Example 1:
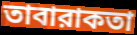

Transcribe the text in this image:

তাবারাকতা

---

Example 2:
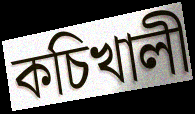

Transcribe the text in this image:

কচিখালী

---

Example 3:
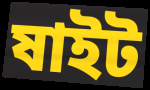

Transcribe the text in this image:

ষাইট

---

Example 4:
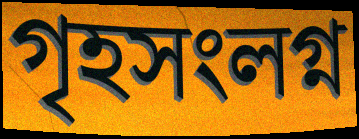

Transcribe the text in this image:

গৃহসংলগ্ন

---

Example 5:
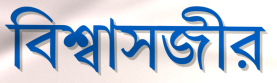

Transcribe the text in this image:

বিশ্বাসজীর